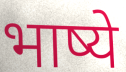
भाष्ये